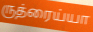
ருத்ரைய்யா